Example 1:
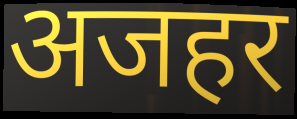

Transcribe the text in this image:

अजहर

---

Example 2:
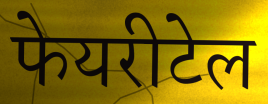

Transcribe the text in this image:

फेयरीटेल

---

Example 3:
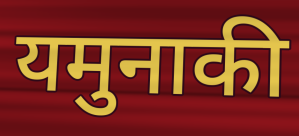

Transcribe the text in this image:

यमुनाकी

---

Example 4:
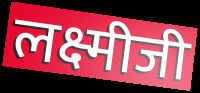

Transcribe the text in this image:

लक्ष्मीजी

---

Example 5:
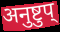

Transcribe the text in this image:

अनुष्टुप्